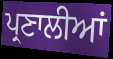
ਪ੍ਰਣਾਲੀਆਂ